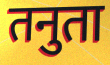
तनुता